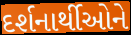
દર્શનાર્થીઓને